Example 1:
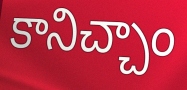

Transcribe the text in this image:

కానిచ్చాం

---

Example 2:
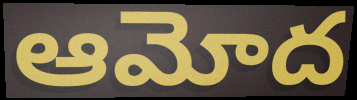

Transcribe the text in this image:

ఆమోద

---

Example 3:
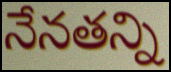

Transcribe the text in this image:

నేనతన్ని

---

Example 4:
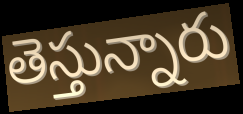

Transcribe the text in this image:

తెస్తున్నారు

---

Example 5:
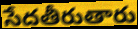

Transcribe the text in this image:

సేదతీరుతారు